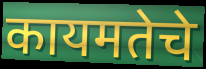
कायमतेचे